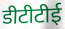
डीटीटीई